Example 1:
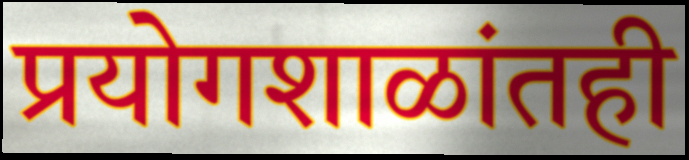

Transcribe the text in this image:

प्रयोगशाळांतही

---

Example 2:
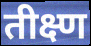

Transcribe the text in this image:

तीक्ष्ण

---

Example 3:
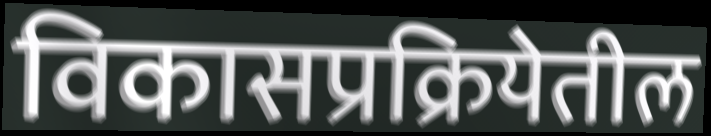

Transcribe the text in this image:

विकासप्रक्रियेतील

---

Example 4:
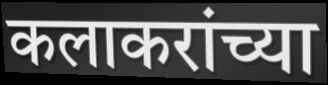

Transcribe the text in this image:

कलाकरांच्या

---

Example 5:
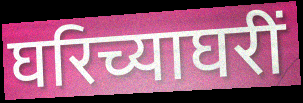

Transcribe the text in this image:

घरिच्याघरीं